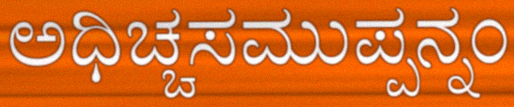
ಅಧಿಚ್ಚಸಮುಪ್ಪನ್ನಂ